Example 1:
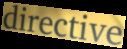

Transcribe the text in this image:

directive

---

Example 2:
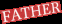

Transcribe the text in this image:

FATHER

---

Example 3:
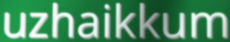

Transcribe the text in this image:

uzhaikkum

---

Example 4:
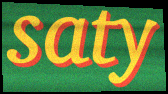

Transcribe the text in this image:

saty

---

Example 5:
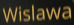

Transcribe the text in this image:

Wislawa